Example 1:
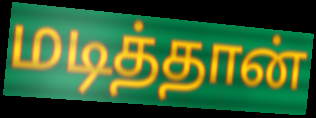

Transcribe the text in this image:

மடித்தான்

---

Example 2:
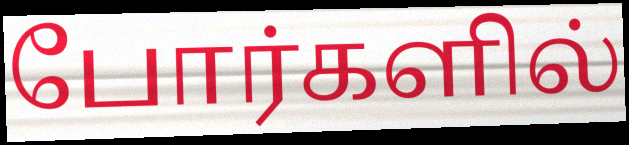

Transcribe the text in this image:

போர்களில்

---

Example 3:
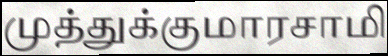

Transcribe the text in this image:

முத்துக்குமாரசாமி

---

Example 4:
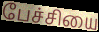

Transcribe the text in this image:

பேச்சியை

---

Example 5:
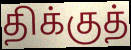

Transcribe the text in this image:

திக்குத்